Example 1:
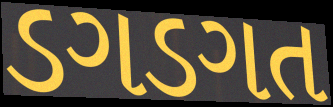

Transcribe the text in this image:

ડગડગત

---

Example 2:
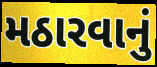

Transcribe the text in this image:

મઠારવાનું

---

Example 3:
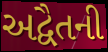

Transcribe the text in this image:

અદ્વૈતની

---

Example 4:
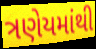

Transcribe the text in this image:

ત્રણેયમાંથી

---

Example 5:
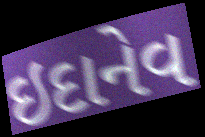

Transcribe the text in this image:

ઇદાનેવ